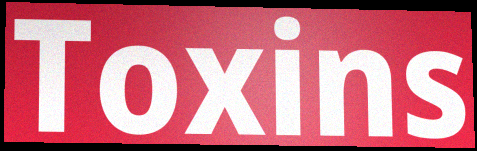
Toxins